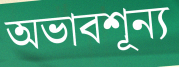
অভাবশূন্য